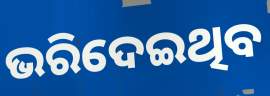
ଭରିଦେଇଥିବ